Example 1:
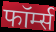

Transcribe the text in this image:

फॉर्म्स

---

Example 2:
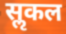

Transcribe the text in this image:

सॢकल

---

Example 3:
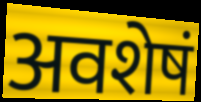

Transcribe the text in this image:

अवशेषं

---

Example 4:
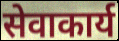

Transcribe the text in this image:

सेवाकार्य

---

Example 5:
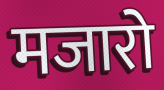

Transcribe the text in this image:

मजारो